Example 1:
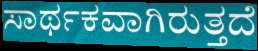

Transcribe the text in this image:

ಸಾರ್ಥಕವಾಗಿರುತ್ತದೆ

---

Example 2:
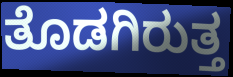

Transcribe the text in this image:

ತೊಡಗಿರುತ್ತ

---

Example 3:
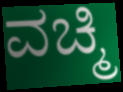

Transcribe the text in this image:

ವಚ್ಮಿ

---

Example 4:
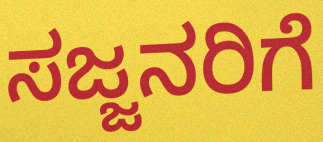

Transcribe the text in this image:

ಸಜ್ಜನರಿಗೆ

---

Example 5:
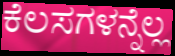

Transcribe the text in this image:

ಕೆಲಸಗಳನ್ನೆಲ್ಲ